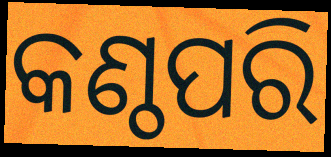
କଣ୍ଠପରି